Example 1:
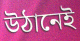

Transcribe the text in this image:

উঠানেই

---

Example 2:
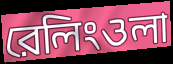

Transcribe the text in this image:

রেলিংওলা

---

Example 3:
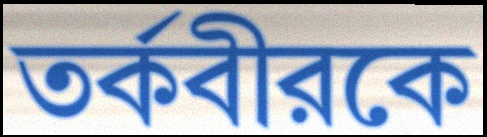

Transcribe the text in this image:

তর্কবীরকে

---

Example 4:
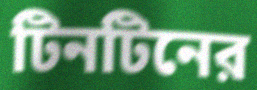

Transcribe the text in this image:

টিনটিনের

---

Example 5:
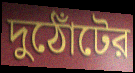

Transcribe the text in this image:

দুঠোঁটের